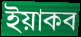
ইয়াকব